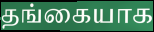
தங்கையாக